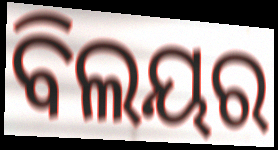
ବିଲୟର